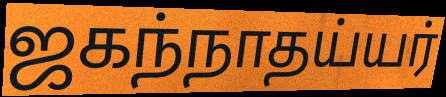
ஜகந்நாதய்யர்